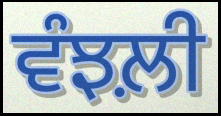
ਵੰਝਲ਼ੀ